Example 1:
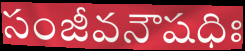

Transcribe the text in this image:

సంజీవనౌషధిః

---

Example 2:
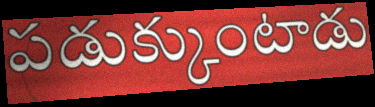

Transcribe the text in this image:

పడుక్కుంటాడు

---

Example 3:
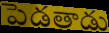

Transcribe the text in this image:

పెడతాడు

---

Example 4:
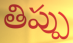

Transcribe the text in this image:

తిప్పు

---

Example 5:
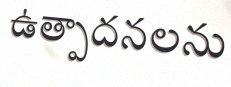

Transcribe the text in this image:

ఉత్పాదనలను